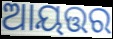
ଆୟତ୍ତର